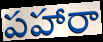
పహారా